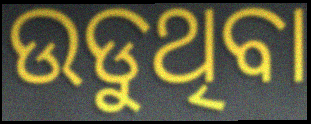
ଉଡୁଥିବା